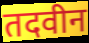
तदवीन